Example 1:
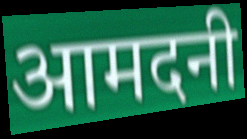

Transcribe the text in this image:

आमदनी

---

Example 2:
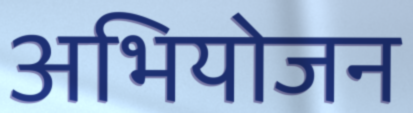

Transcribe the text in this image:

अभियोजन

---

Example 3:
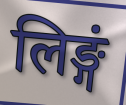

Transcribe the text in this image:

लिङ्गं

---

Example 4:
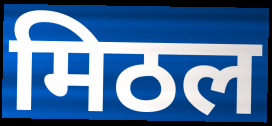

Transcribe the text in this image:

मिठल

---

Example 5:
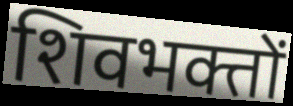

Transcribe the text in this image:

शिवभक्तों